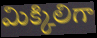
మిక్కిలిగా